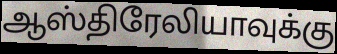
ஆஸ்திரேலியாவுக்கு